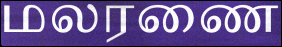
மலரணை